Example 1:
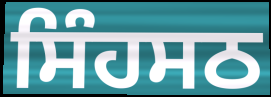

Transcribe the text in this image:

ਸਿੰਹਸਠ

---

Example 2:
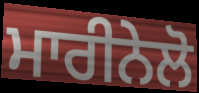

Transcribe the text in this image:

ਮਾਰੀਨੇਲੋ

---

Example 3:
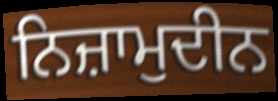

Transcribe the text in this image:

ਨਿਜ਼ਾਮੁਦੀਨ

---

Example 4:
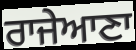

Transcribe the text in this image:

ਰਾਜੇਆਣਾ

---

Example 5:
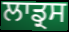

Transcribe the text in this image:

ਲਾਡ੍ਰਸ